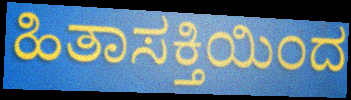
ಹಿತಾಸಕ್ತಿಯಿಂದ